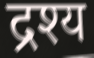
द्रश्य